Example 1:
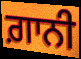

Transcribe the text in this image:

ਗ਼ਾਨੀ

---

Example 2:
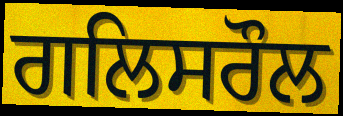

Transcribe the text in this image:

ਗਲਿਸਰੌਲ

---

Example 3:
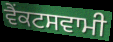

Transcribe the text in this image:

ਵੈਂਕਟਸਵਾਮੀ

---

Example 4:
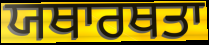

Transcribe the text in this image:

ਯਥਾਰਥਤਾ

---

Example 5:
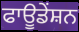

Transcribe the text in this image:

ਫਾਊਡੇਂਸ਼ਨ